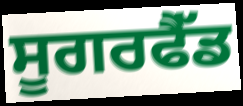
ਸੂਗਰਫੈੱਡ